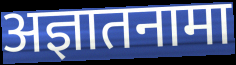
अज्ञातनामा